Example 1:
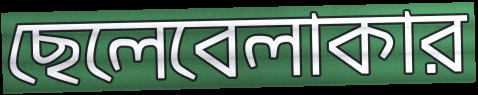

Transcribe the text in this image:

ছেলেবেলাকার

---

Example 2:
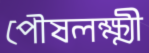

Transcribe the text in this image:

পৌষলক্ষ্মী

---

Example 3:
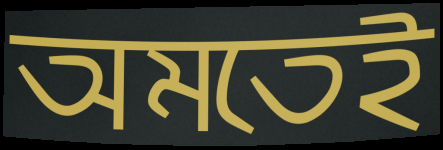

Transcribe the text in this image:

অমতেই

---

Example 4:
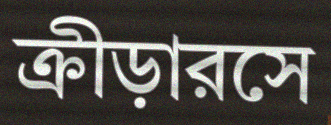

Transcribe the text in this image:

ক্রীড়ারসে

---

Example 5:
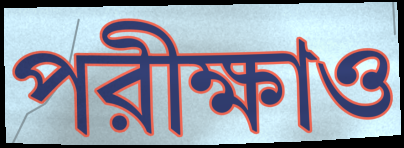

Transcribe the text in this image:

পরীক্ষাও